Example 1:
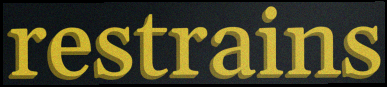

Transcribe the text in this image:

restrains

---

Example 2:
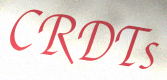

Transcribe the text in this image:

CRDTs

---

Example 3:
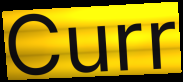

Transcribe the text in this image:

Curr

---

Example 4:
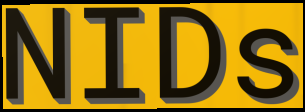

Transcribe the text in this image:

NIDs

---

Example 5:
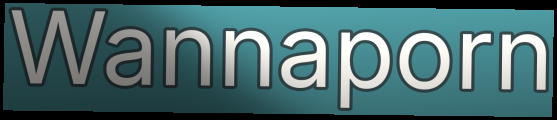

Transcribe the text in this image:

Wannaporn